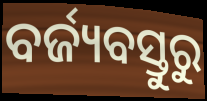
ବର୍ଜ୍ୟବସ୍ତୁରୁ